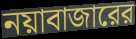
নয়াবাজারের